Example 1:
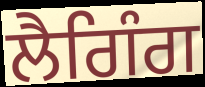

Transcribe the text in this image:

ਲੈਗਿੰਗ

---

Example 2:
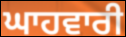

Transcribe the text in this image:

ਘਾਹਵਾਰੀ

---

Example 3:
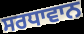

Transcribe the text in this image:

ਸਰਧਾਵਾਨ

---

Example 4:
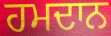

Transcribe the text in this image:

ਹਮਦਾਨ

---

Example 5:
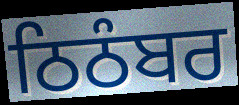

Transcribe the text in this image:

ਠਿਠੰਬਰ